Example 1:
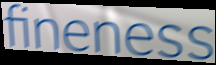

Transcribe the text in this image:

fineness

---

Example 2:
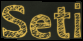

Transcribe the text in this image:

Seti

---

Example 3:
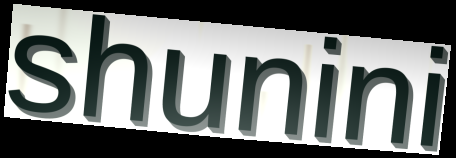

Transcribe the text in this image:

shunini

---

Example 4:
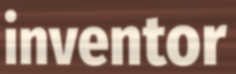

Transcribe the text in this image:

inventor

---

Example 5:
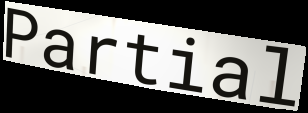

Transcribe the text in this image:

Partial